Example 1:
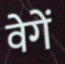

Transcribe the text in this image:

वेगें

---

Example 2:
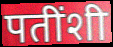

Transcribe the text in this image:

पतींशी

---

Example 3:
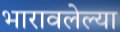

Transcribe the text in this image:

भारावलेल्या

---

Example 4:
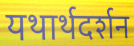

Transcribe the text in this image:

यथार्थदर्शन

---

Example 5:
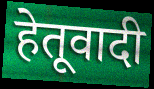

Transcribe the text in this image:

हेतूवादी